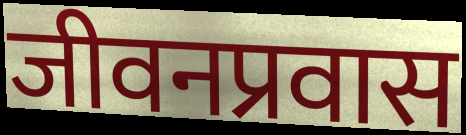
जीवनप्रवास